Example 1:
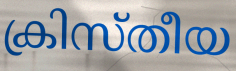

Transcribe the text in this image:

ക്രിസ്തീയ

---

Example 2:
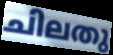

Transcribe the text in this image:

ചിലതു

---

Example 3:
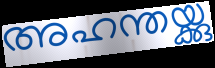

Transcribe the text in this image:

അഹന്തയ്ക്കു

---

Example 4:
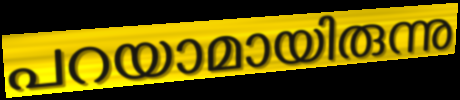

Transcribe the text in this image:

പറയാമായിരുന്നു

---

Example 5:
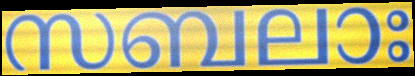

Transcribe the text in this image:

സബലാഃ